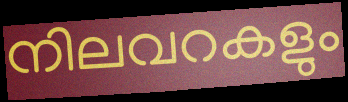
നിലവറകളും